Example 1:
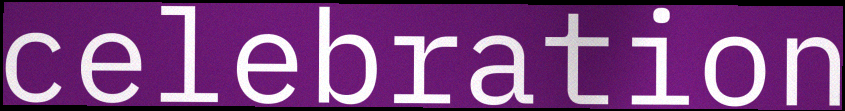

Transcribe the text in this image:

celebration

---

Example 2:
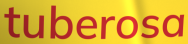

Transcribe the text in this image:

tuberosa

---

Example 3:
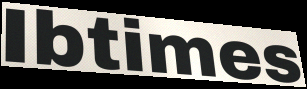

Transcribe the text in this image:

Ibtimes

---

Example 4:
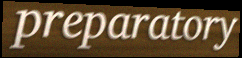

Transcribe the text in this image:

preparatory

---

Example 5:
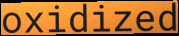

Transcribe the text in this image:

oxidized